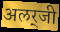
अलर्जी